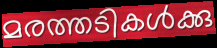
മരത്തടികൾക്കു